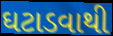
ઘટાડવાથી